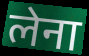
लेना